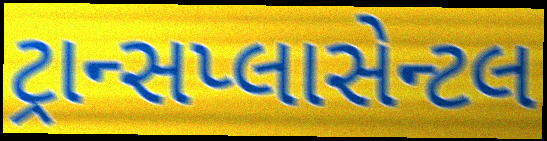
ટ્રાન્સપ્લાસેન્ટલ